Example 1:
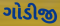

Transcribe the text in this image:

ગોડીજી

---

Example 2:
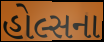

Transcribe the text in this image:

હોલ્સના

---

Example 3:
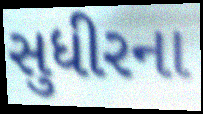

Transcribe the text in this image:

સુધીરના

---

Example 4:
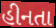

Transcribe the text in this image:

હીનતા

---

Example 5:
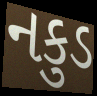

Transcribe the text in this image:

નકુડ